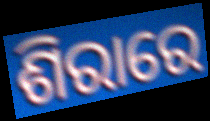
ଶିରାରେ